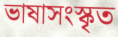
ভাষাসংস্কৃত